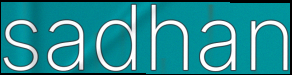
sadhan